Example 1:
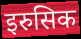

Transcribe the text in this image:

इरुसिक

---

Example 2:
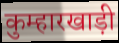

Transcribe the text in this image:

कुम्हारखाड़ी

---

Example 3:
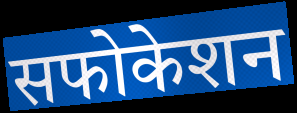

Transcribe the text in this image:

सफोकेशन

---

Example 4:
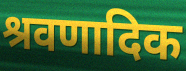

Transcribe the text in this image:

श्रवणादिक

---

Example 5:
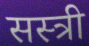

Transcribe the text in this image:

सस्त्री